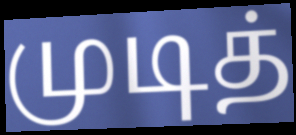
முடித்